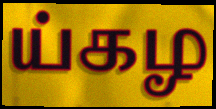
ய்கழ